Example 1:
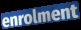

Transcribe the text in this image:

enrolment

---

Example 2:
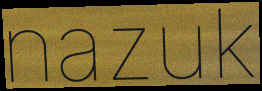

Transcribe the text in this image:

nazuk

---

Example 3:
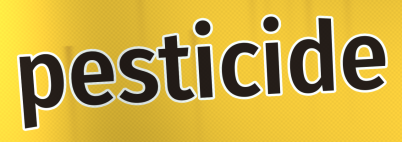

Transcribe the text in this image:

pesticide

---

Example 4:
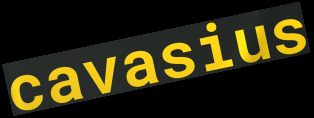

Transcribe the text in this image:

cavasius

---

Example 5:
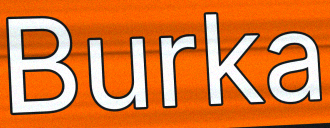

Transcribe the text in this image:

Burka